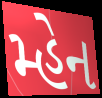
મ્હેન